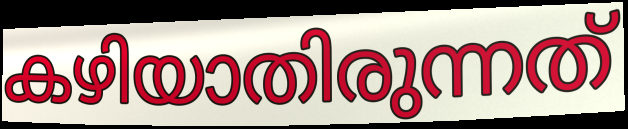
കഴിയാതിരുന്നത്